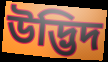
উদ্ভিদ